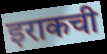
इराकची